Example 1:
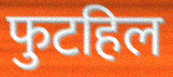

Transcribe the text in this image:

फुटहिल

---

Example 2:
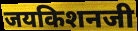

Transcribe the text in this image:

जयकिशनजी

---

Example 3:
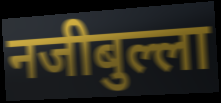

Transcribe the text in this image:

नजीबुल्ला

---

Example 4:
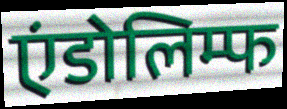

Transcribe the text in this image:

एंडोलिम्फ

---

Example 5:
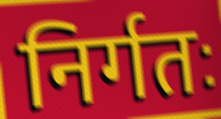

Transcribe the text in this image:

निर्गतः